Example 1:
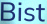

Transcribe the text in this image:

Bist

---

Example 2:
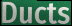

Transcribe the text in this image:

Ducts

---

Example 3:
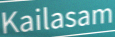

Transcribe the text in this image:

Kailasam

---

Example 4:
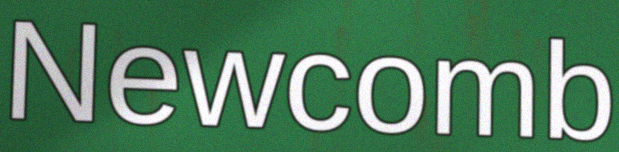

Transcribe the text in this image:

Newcomb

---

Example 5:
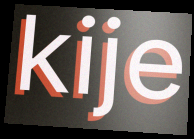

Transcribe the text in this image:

kije